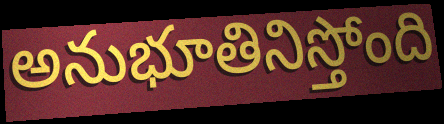
అనుభూతినిస్తోంది